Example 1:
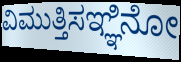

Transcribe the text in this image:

ವಿಮುತ್ತಿಸಞ್ಞಿನೋ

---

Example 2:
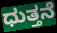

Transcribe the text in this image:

ಧುತ್ತನೆ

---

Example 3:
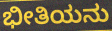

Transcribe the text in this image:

ಭೀತಿಯನು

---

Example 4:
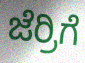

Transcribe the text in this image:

ಜೆರ್ರಿಗೆ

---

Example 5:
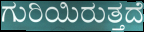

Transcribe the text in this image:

ಗುರಿಯಿರುತ್ತದೆ